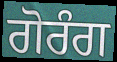
ਗੋਰੰਗ